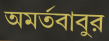
অমর্তবাবুর